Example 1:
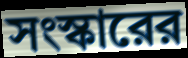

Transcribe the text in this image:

সংস্কারের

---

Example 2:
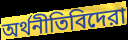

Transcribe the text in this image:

অর্থনীতিবিদেরা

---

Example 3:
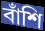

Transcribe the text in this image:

বাঁশি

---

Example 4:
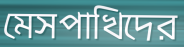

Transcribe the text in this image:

মেসপাখিদের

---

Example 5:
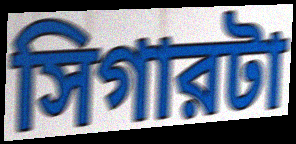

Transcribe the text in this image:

সিগারটা